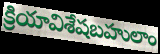
క్రియావిశేషబహులాం